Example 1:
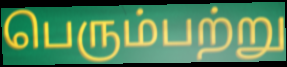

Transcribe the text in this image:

பெரும்பற்று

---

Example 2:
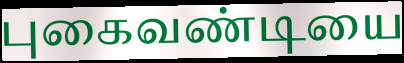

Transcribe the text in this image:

புகைவண்டியை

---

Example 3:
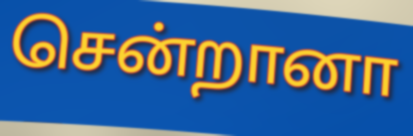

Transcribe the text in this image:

சென்றானா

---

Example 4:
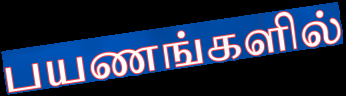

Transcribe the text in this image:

பயணங்களில்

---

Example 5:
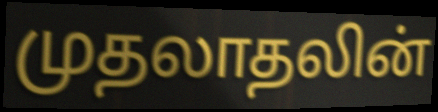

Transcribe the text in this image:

முதலாதலின்